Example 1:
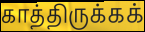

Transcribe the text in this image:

காத்திருக்கக்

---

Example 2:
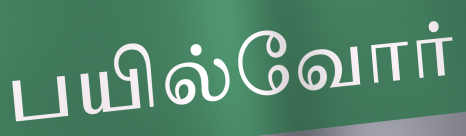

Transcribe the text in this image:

பயில்வோர்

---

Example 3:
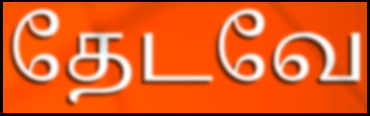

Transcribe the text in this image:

தேடவே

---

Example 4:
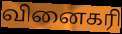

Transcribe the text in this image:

வினைகரி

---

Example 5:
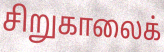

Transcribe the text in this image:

சிறுகாலைக்